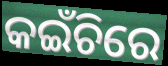
କଇଁଚିରେ